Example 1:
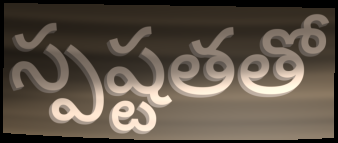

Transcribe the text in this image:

స్పష్టతతో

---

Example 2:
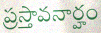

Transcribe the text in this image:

ప్రస్తావనార్హం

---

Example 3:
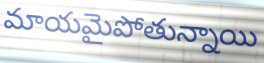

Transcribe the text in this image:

మాయమైపోతున్నాయి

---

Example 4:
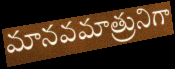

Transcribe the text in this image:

మానవమాత్రునిగా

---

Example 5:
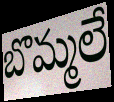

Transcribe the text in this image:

బొమ్మలే